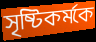
সৃষ্টিকর্মকে